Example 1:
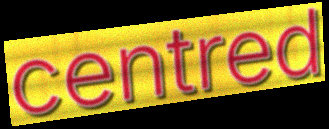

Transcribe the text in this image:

centred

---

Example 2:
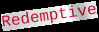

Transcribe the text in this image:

Redemptive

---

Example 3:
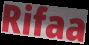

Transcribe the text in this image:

Rifaa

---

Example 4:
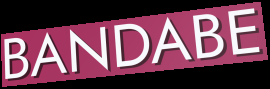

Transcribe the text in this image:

BANDABE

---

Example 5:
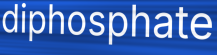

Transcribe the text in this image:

diphosphate